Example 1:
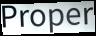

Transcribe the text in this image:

Proper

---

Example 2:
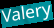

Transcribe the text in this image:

Valery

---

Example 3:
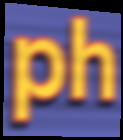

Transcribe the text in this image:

ph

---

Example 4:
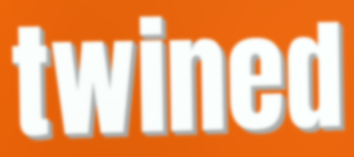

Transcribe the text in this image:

twined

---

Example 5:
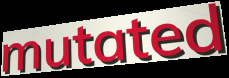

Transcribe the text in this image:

mutated